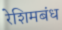
रेशिमबंध